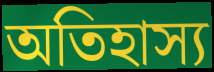
অতিহাস্য